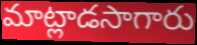
మాట్లాడసాగారు